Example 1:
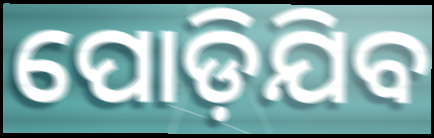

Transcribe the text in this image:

ପୋଡ଼ିଯିବ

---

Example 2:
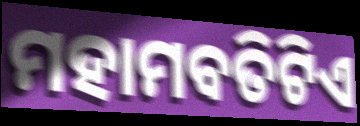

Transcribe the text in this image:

ମହାମବତିଟିଏ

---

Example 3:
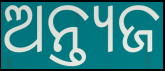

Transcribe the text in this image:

ଅନ୍ତ୍ୟଜ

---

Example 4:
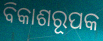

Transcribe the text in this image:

ବିକାଶରୂପକ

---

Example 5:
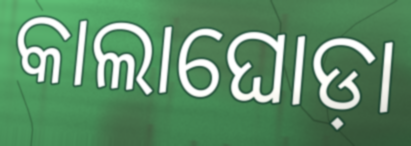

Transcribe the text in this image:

କାଲାଘୋଡ଼ା